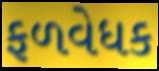
ફળવેધક